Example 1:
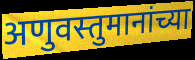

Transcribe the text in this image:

अणुवस्तुमानांच्या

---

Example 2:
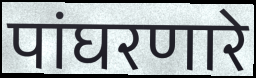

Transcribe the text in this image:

पांघरणारे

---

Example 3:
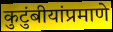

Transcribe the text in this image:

कुटुंबीयांप्रमाणे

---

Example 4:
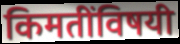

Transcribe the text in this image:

किमतींविषयी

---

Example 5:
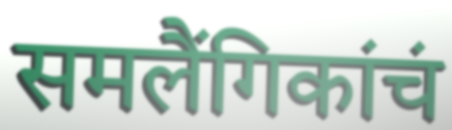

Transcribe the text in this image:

समलैंगिकांचं